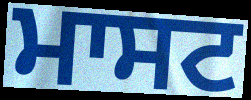
ਮਾਸਟ